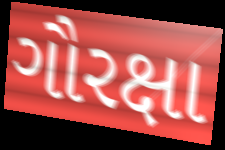
ગૌરક્ષા